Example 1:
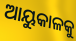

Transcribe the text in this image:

ଆୟୁକାଳକୁ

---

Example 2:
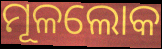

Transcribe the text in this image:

ମୂଳଲୋକ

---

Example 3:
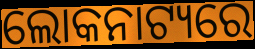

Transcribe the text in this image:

ଲୋକନାଟ୍ୟରେ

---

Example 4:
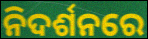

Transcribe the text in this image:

ନିଦର୍ଶନରେ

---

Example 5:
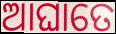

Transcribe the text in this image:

ଆଘାତେ